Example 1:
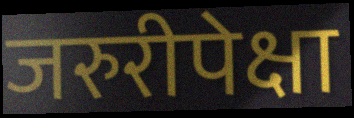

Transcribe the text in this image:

जरुरीपेक्षा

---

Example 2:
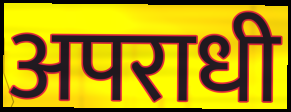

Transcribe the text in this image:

अपराधी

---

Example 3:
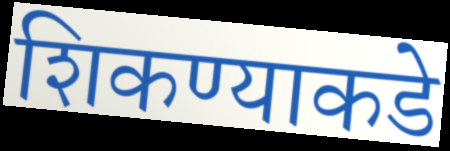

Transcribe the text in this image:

शिकण्याकडे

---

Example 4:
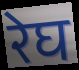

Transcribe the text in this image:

रेघ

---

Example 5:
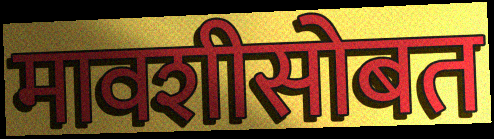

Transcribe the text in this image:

मावशीसोबत